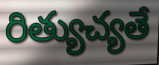
రిత్యుచ్యతే